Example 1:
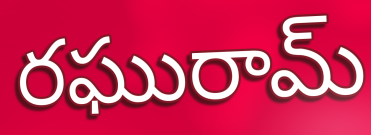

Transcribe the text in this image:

రఘురామ్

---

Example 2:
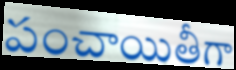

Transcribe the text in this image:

పంచాయితీగా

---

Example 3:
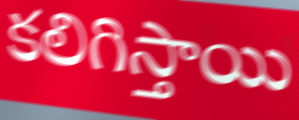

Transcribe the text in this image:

కలిగిస్తాయి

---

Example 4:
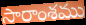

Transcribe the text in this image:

సారాంశము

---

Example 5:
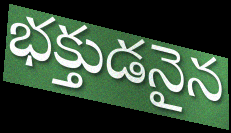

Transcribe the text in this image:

భక్తుడనైన